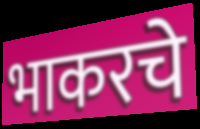
भाकरचे